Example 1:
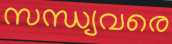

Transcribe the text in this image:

സന്ധ്യവരെ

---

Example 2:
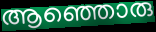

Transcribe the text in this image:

ആഞ്ഞൊരു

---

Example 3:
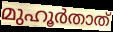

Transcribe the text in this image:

മുഹൂർതാത്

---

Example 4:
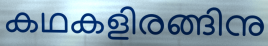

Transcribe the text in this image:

കഥകളിരങ്ങിനു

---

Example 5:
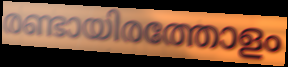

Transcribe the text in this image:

രണ്ടായിരത്തോളം